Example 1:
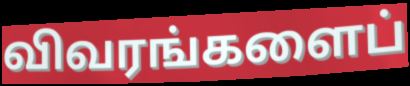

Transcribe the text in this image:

விவரங்களைப்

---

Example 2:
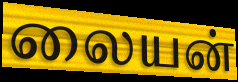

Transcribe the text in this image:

லையன்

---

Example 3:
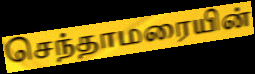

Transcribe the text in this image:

செந்தாமரையின்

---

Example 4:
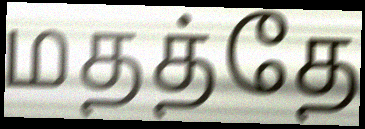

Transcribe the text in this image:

மதத்தே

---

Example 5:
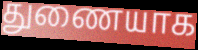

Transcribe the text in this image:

துணையாக